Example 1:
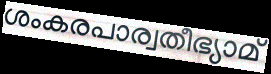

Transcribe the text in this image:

ശംകരപാര്വതീഭ്യാമ്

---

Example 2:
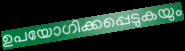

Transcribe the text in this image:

ഉപയോഗിക്കപ്പെടുകയും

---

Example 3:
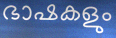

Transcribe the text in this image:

ഭാഷകളും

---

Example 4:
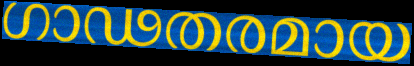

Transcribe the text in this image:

ഗാഢതരമായ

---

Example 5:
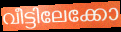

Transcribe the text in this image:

വീട്ടിലേക്കോ